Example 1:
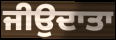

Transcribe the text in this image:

ਜੀਉਦਾਤਾ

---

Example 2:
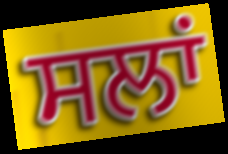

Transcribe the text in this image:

ਸਲਾਂ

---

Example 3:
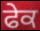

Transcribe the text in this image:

ਫੇਕ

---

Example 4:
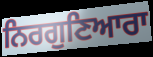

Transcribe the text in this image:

ਨਿਰਗੁਣਿਆਰਾ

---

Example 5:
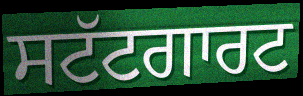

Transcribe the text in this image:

ਸਟੱਟਗਾਰਟ